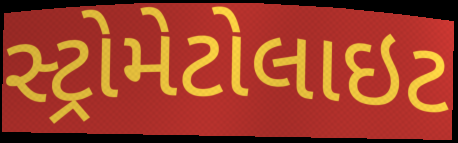
સ્ટ્રોમેટોલાઇટ